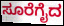
ಸೂರೆಗೈದ